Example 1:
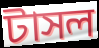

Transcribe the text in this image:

টাসল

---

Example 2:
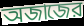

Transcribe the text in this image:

অজাজের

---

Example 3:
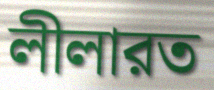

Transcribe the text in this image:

লীলারত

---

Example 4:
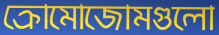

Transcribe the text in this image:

ক্রোমোজোমগুলো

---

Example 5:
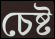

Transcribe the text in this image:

চেষ্ট